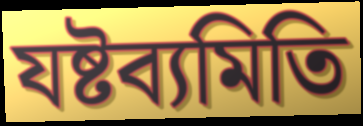
যষ্টব্যমিতি